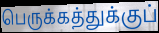
பெருக்கத்துக்குப்